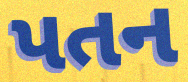
પતન